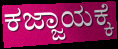
ಕಜ್ಜಾಯಕ್ಕೆ